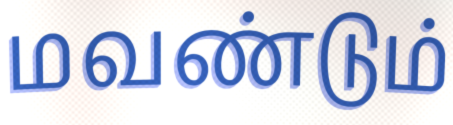
மவண்டும்